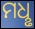
ମଧୢ